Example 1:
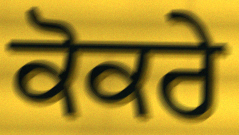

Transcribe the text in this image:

ਕੋਕਰੇ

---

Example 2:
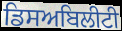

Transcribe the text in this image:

ਡਿਸਅਬਿਲੀਟੀ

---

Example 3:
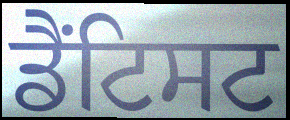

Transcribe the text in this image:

ਡੈਂਟਿਸਟ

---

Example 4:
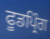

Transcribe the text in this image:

ਫੂਡਪ੍ਰਿੰਗ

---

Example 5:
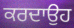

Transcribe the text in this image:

ਕਰਦਾਉਹ